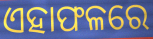
ଏହାଫଳରେ